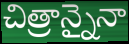
చిత్రాన్నైనా